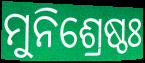
ମୁନିଶ୍ରେଷ୍ଠଃ